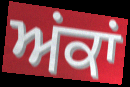
ਅਂਕਾਂ